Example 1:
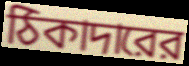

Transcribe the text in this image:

ঠিকাদারের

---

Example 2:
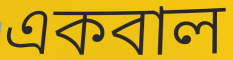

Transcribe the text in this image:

একবাল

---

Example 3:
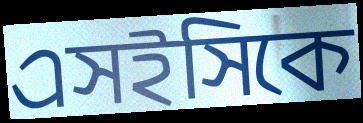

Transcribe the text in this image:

এসইসিকে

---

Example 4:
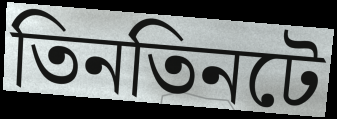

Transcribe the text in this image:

তিনতিনটে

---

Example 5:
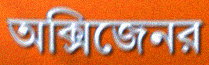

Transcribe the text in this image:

অক্সিজেনর